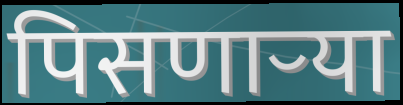
पिसणाऱ्या